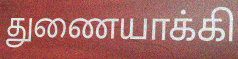
துணையாக்கி